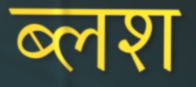
ब्लश